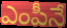
ఎంపీనే